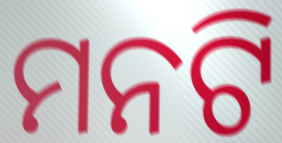
ମନଟି